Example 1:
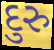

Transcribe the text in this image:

દુરુ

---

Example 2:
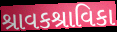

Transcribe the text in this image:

શ્રાવકશ્રાવિકા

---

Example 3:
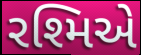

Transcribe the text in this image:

રશ્મિએ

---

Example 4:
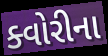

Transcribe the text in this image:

ક્વોરીના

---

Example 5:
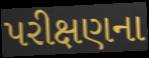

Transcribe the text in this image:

પરીક્ષણના